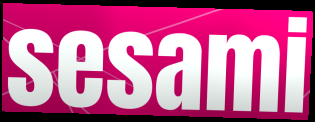
sesami